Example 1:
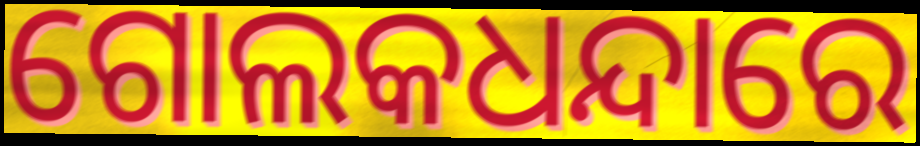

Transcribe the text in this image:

ଗୋଲକଧନ୍ଦାରେ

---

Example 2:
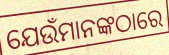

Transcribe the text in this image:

ଯେଉଁମାନଙ୍କଠାରେ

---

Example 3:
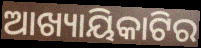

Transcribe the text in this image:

ଆଖ୍ୟାୟିକାଟିର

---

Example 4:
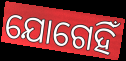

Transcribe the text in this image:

ଯୋଗେହିଁ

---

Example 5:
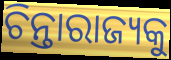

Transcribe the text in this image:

ଚିନ୍ତାରାଜ୍ୟକୁ